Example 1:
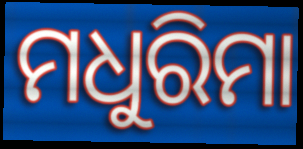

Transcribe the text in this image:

ମଧୁରିମା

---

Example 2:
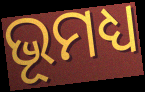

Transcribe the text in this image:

ଭୂମଧ୍ୟ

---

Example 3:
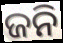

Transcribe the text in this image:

ଜନି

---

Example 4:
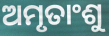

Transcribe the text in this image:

ଅମୃତାଂଶୁ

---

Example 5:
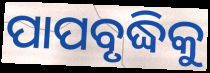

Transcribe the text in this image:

ପାପବୃଦ୍ଧିକୁ